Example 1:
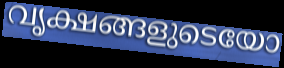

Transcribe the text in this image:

വൃക്ഷങ്ങളുടെയോ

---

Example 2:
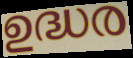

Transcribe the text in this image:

ഉദ്ധര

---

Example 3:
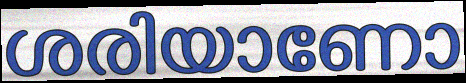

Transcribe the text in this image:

ശരിയാണോ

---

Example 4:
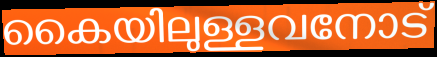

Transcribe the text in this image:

കൈയിലുള്ളവനോട്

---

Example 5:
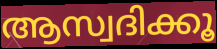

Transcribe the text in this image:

ആസ്വദിക്കൂ